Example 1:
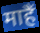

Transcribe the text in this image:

माहैं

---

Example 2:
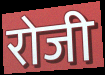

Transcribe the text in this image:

रोजी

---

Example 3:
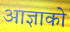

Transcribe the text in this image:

आज्ञाको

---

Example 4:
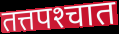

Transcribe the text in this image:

तत्तपश्चात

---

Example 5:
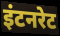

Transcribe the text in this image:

इंटनरेट